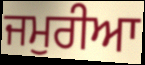
ਜਮੁਰੀਆ